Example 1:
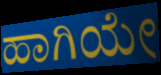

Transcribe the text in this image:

ಹಾಗಿಯೇ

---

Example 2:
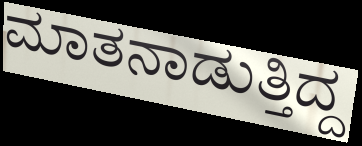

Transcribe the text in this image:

ಮಾತನಾಡುತ್ತಿದ್ದ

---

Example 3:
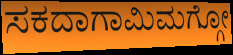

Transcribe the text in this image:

ಸಕದಾಗಾಮಿಮಗ್ಗೋ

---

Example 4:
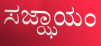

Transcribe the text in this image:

ಸಜ್ಝಾಯಂ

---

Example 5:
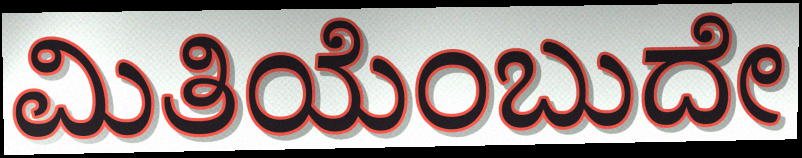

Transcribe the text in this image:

ಮಿತಿಯೆಂಬುದೇ